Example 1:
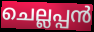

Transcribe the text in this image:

ചെല്ലപ്പൻ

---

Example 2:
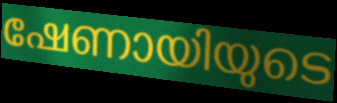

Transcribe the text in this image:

ഷേണായിയുടെ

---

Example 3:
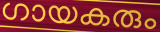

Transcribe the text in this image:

ഗായകരും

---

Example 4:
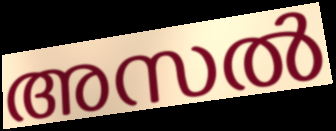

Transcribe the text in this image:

അസൽ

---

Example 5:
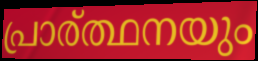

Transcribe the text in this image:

പ്രാര്ത്ഥനയും